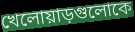
খেলোয়াড়গুলোকে